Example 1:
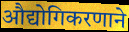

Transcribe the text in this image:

औद्योगिकरणाने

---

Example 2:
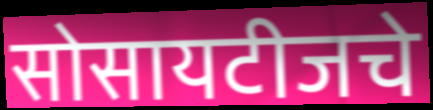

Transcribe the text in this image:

सोसायटीजचे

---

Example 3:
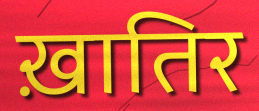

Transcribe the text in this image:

ख़ातिर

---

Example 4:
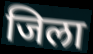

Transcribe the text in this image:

जिला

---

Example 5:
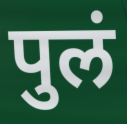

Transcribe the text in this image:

पुलं